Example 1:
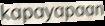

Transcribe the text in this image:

kapayapaan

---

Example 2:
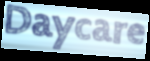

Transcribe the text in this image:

Daycare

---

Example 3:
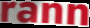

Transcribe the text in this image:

rann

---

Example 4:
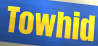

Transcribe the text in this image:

Towhid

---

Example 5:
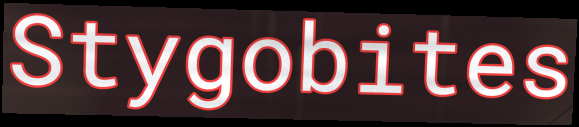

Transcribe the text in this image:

Stygobites